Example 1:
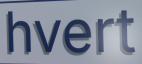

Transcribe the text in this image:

hvert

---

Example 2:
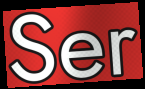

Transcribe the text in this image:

Ser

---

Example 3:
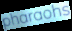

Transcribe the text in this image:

pharaohs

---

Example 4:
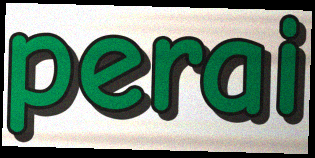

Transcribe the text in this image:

perai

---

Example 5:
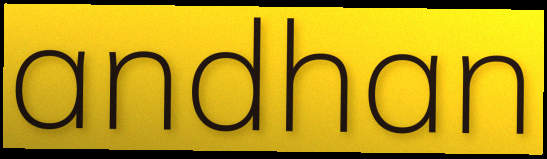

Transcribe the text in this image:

andhan